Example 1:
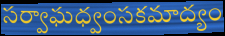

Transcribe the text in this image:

సర్వాఘధ్వంసకమాద్యం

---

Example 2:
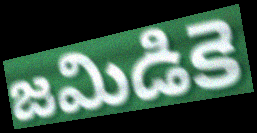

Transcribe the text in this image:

జమిడికె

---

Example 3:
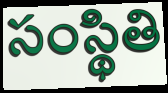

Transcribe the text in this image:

సంస్థితి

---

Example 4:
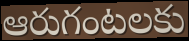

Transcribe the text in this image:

ఆరుగంటలకు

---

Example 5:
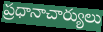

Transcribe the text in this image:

ప్రధానాచార్యులు